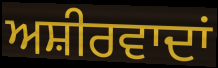
ਅਸ਼ੀਰਵਾਦਾਂ